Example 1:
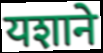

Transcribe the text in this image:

यशाने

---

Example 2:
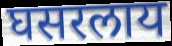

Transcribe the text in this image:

घसरलाय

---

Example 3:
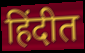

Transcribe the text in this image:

हिंदीत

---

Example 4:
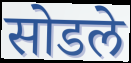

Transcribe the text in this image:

सोडले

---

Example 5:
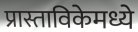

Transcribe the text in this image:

प्रास्ताविकेमध्ये